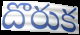
దొరుక